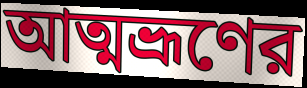
আত্মভ্রূণের